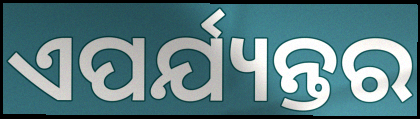
ଏପର୍ଯ୍ୟନ୍ତର